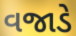
વજાડે